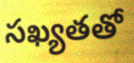
సఖ్యతతో